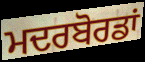
ਮਦਰਬੋਰਡਾਂ